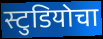
स्टुडियोचा